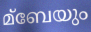
മ്ബേയും